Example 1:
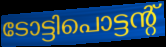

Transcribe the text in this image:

ടോട്ടിപൊട്ടന്റ്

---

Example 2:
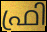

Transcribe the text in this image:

ഫ്രി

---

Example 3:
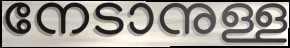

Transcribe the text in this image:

നേടാനുള്ള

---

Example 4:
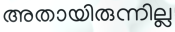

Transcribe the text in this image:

അതായിരുന്നില്ല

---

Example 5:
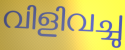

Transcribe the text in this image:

വിളിവച്ചു